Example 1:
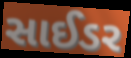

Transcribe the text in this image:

સાઈડર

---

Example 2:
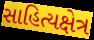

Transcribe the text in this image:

સાહિત્યક્ષેત્ર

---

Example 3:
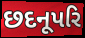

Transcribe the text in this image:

છદનૂપરિ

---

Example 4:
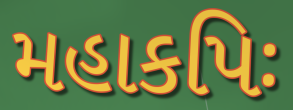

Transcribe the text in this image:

મહાકપિઃ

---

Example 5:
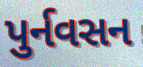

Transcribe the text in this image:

પુર્નવસન